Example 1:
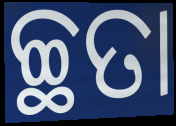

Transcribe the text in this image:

ଚ୍ଛତା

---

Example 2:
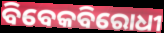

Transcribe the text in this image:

ବିବେକବିରୋଧୀ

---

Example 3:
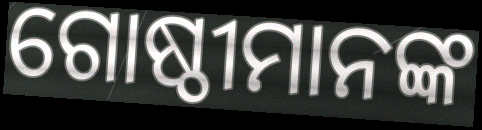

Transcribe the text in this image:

ଗୋଷ୍ଠୀମାନଙ୍କ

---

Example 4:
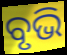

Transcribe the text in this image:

ବୃଭି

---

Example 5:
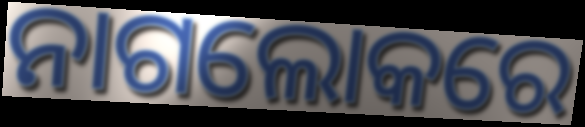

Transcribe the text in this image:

ନାଗଲୋକରେ